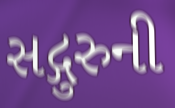
સદ્ગુરુની